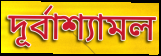
দূর্বাশ্যামল